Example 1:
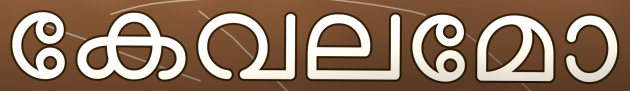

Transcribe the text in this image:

കേവലമോ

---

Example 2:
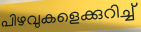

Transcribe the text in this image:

പിഴവുകളെക്കുറിച്ച്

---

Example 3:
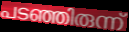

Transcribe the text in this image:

പടഞ്ഞിരുന്ന്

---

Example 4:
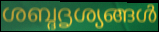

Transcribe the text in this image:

ശബ്ദദൃശ്യങ്ങൾ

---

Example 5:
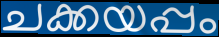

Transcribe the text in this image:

ചക്കയപ്പം